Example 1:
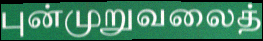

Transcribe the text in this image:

புன்முறுவலைத்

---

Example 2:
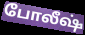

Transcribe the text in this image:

போலீஷ்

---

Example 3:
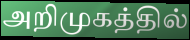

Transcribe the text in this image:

அறிமுகத்தில்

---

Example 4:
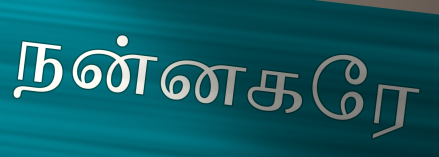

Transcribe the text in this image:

நன்னகரே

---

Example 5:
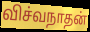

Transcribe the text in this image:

விச்வநாதன்